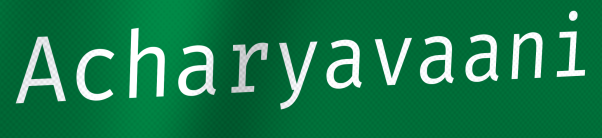
Acharyavaani